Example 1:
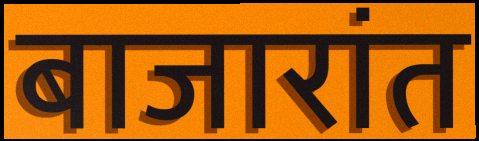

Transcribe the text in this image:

बाजारांत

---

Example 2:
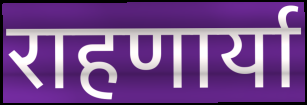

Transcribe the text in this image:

राहणार्या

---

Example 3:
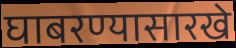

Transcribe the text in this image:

घाबरण्यासारखे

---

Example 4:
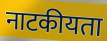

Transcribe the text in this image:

नाटकीयता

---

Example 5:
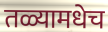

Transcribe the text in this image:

तळ्यामधेच